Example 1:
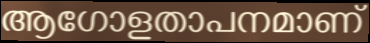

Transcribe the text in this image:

ആഗോളതാപനമാണ്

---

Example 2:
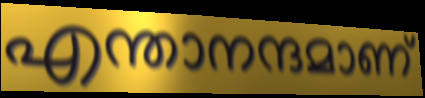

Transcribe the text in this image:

എന്താനന്ദമാണ്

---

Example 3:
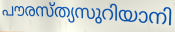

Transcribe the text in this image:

പൗരസ്ത്യസുറിയാനി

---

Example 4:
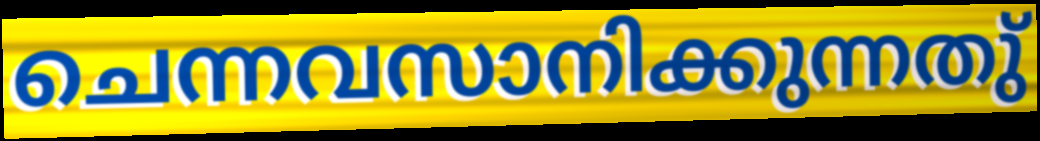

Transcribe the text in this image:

ചെന്നവസാനിക്കുന്നതു്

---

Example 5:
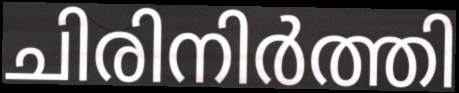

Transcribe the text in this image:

ചിരിനിർത്തി